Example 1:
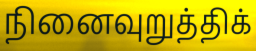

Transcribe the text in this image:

நினைவுறுத்திக்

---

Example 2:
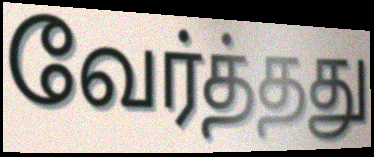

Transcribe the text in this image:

வேர்த்தது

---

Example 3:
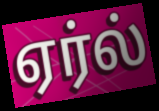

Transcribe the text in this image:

ஏர்ல்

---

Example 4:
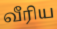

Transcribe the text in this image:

வீரிய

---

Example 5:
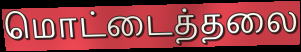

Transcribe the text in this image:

மொட்டைத்தலை